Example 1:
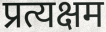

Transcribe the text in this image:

प्रत्यक्षम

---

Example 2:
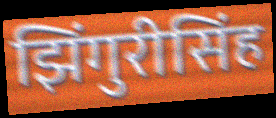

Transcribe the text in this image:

झिंगुरीसिंह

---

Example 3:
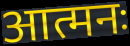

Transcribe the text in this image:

आत्मनः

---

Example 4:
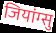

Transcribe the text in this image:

जियांग्सु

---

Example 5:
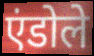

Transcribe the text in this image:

एंडोले